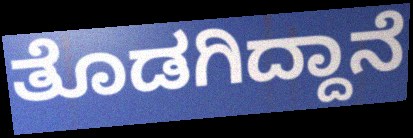
ತೊಡಗಿದ್ದಾನೆ